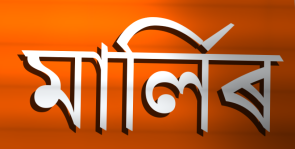
মাৰ্লিৰ